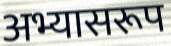
अभ्यासरूप